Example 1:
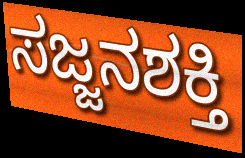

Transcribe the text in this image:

ಸಜ್ಜನಶಕ್ತಿ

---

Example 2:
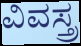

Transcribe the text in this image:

ವಿವಸ್ತ್ರ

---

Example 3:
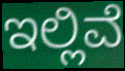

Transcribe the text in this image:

ಇಲ್ಲಿವೆ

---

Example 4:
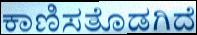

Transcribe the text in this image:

ಕಾಣಿಸತೊಡಗಿದೆ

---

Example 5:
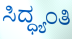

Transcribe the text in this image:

ಸಿದ್ಧ್ಯಂತಿ